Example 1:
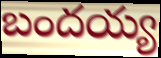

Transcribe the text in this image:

బందయ్య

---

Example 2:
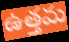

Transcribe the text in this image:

ఉత్తమ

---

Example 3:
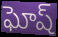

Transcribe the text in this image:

ఘోష్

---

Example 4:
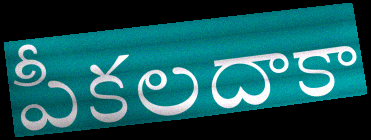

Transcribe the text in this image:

పీకలదాకా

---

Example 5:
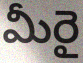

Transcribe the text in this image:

మీరై